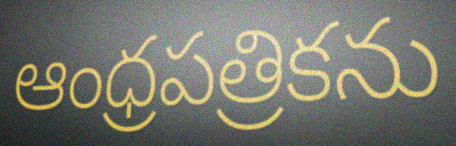
ఆంధ్రపత్రికను